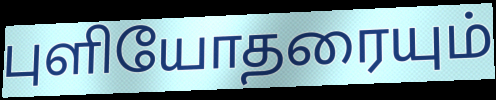
புளியோதரையும்